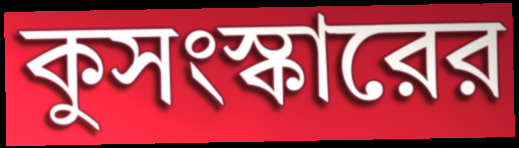
কুসংস্কারের